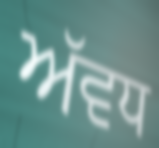
ਅੱਵਧ